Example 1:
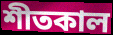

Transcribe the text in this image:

শীতকাল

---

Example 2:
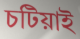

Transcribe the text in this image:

চটিয়াই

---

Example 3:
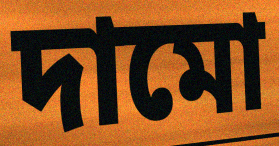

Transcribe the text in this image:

দামো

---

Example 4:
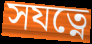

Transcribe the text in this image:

সযত্নে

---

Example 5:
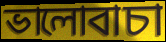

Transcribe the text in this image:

ভালোবাচা